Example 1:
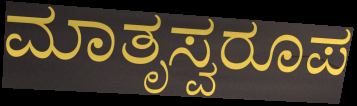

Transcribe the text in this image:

ಮಾತೃಸ್ವರೂಪ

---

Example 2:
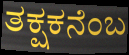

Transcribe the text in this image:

ತಕ್ಷಕನೆಂಬ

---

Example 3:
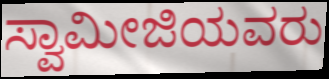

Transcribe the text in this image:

ಸ್ವಾಮೀಜಿಯವರು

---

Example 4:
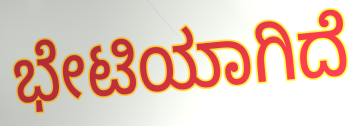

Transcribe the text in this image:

ಭೇಟಿಯಾಗಿದೆ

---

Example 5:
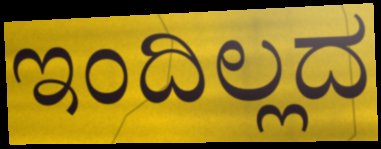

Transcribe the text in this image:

ಇಂದಿಲ್ಲದ